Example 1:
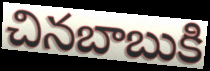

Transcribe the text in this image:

చినబాబుకి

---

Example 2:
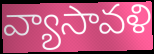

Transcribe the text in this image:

వ్యాసావళి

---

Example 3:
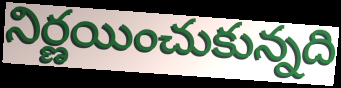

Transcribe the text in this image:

నిర్ణయించుకున్నది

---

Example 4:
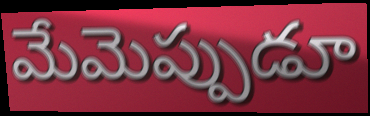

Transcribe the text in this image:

మేమెప్పుడూ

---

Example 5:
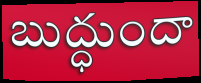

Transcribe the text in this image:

బుద్ధుందా